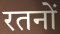
रतनों